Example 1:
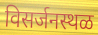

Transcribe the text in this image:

विसर्जनस्थळ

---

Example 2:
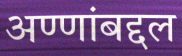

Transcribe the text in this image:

अण्णांबद्दल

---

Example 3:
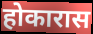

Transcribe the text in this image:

होकारास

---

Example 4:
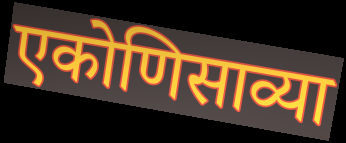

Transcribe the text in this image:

एकोणिसाव्या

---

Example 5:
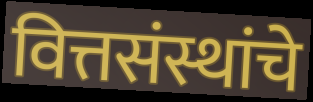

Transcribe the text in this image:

वित्तसंस्थांचे